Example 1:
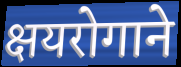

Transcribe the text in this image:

क्षयरोगाने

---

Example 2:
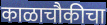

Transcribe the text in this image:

काळाचौकीचा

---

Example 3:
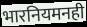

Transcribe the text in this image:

भारनियमनही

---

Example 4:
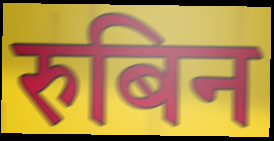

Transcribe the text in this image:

रुबिन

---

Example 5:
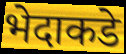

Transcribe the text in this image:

भेदाकडे